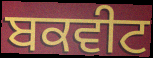
ਬਕਵੀਟ